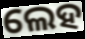
ଲେହ